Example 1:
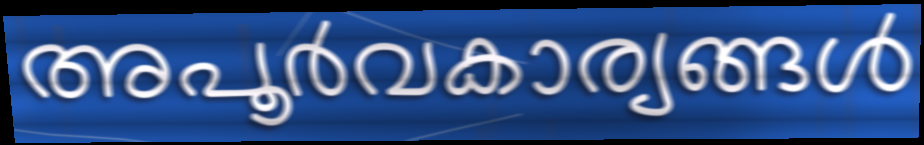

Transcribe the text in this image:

അപൂർവകാര്യങ്ങൾ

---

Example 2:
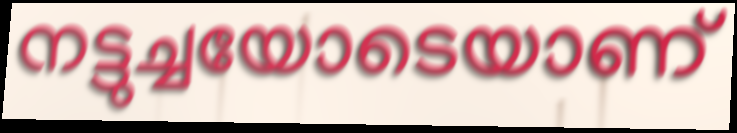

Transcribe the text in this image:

നട്ടുച്ചയോടെയാണ്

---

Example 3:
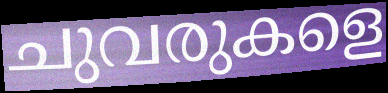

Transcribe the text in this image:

ചുവരുകളെ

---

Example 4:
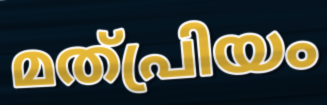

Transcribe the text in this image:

മത്പ്രിയം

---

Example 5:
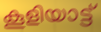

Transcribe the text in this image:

കൂളിയാട്ട്